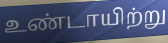
உண்டாயிற்று